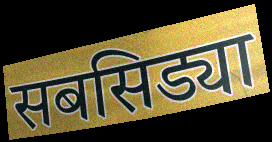
सबसिड्या